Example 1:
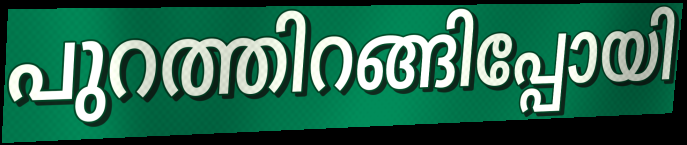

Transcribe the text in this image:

പുറത്തിറങ്ങിപ്പോയി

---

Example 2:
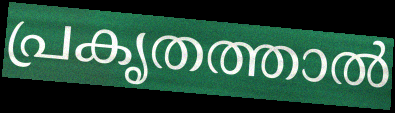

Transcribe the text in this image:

പ്രകൃതത്താൽ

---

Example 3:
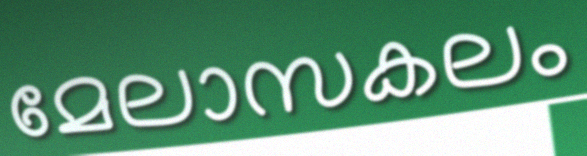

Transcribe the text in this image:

മേലാസകലം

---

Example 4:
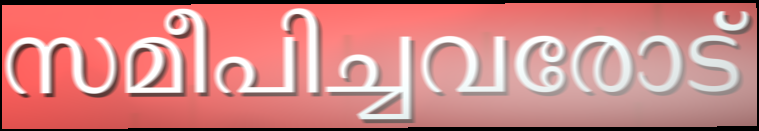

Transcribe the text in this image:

സമീപിച്ചവരോട്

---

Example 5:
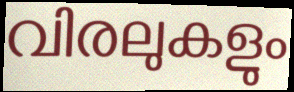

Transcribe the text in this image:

വിരലുകളും